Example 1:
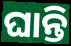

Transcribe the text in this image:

ଘାନ୍ତି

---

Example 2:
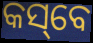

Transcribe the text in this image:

କସ୍‌ବେ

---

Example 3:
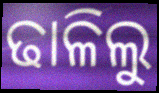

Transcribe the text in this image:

ଢାଳିଲୁ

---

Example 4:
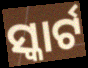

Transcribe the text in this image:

ସ୍କାର୍ଟ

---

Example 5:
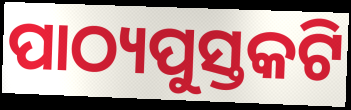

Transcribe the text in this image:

ପାଠ୍ୟପୁସ୍ତକଟି